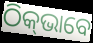
ଠିକ୍‍ଭାବେ